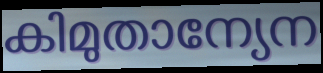
കിമുതാന്യേന